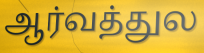
ஆர்வத்துல